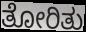
ತೋರಿತು